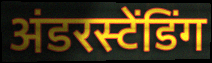
अंडरस्टेंडिंग